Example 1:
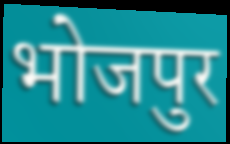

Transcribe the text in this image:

भोजपुर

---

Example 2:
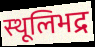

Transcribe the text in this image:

स्थूलिभद्र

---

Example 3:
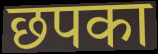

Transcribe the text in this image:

छपका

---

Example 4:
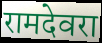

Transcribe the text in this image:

रामदेवरा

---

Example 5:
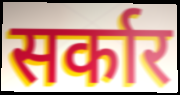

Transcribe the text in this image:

सर्कार